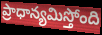
ప్రాధాన్యమిస్తోంది